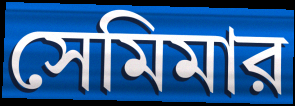
সেমিমার